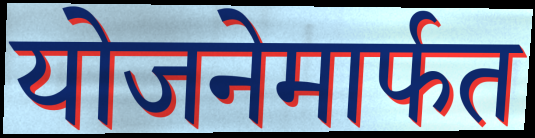
योजनेमार्फत